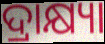
ଦ୍ରାକ୍ଷ୍ୟା